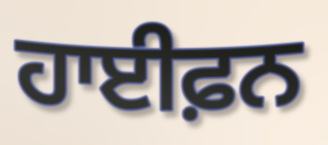
ਹਾਈਫ਼ਨ